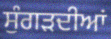
ਸੁੰਗੜਦੀਆਂ